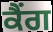
ਕੈਂਗ